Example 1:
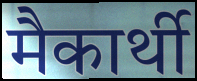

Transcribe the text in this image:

मैकार्थी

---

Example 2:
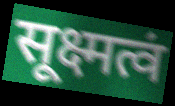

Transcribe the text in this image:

सूक्ष्मत्वं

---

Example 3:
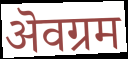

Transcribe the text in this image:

ऄवग्रम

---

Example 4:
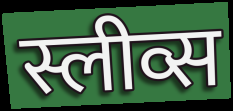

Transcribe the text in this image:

स्लीव्स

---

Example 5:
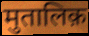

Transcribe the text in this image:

मुतालिक़